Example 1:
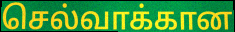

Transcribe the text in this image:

செல்வாக்கான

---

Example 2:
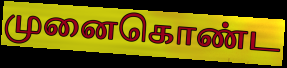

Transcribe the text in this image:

முனைகொண்ட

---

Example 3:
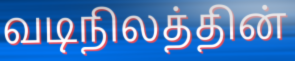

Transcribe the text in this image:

வடிநிலத்தின்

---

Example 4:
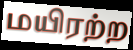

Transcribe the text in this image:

மயிரற்ற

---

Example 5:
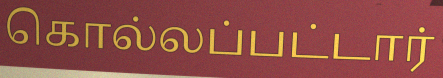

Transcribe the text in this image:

கொல்லப்பட்டார்